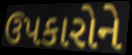
ઉપકારોને